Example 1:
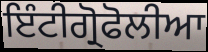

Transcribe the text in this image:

ਇੰਟੀਗ੍ਰੋਫੋਲੀਆ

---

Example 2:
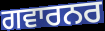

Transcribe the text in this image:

ਗਵਾਰਨਰ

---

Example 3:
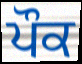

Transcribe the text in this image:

ਪੌਕ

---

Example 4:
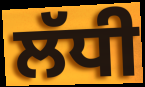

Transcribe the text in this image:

ਲੱਧੀ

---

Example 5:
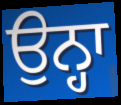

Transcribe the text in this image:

ਉਨ੍ਹਾ